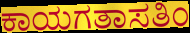
ಕಾಯಗತಾಸತಿಂ